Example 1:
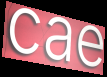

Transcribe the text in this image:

cae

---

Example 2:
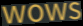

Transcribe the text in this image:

wows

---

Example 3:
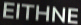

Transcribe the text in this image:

EITHNE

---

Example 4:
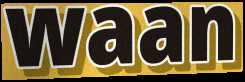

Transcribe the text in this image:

waan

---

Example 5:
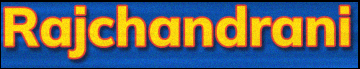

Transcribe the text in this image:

Rajchandrani